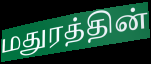
மதுரத்தின்